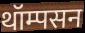
थॉम्पसन